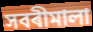
সবৰীমালা